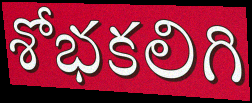
శోభకలిగి